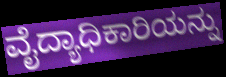
ವೈದ್ಯಾಧಿಕಾರಿಯನ್ನು